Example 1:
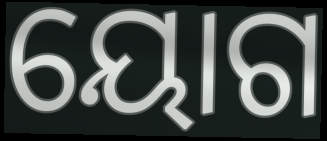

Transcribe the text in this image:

ୟୋଗ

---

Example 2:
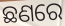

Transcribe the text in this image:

ଛଣରେ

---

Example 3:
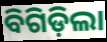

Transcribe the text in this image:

ବିଗିଡ଼ିଲା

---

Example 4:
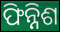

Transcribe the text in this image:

ଫିନ୍ନିଶ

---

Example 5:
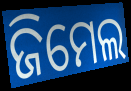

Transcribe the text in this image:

ଜିମେଲ